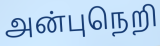
அன்புநெறி